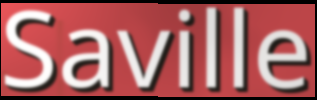
Saville